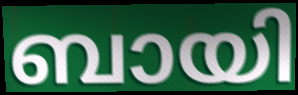
ബായി